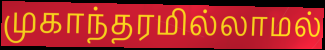
முகாந்தரமில்லாமல்